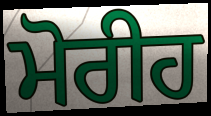
ਮੋਰੀਹ